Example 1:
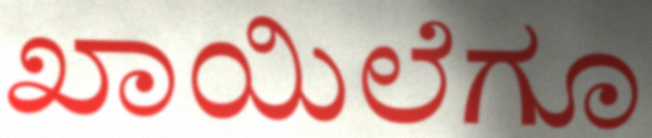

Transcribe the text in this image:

ಖಾಯಿಲೆಗೂ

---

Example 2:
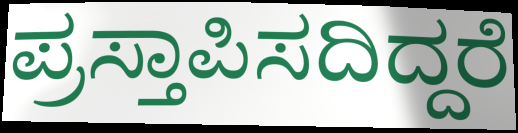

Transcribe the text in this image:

ಪ್ರಸ್ತಾಪಿಸದಿದ್ದರೆ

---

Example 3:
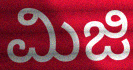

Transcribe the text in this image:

ಮಿಜಿ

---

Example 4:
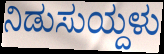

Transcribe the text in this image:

ನಿಡುಸುಯ್ದಳು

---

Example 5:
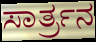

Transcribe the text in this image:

ಸಾರ್ತ್ರನ